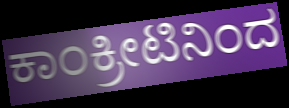
ಕಾಂಕ್ರೀಟಿನಿಂದ